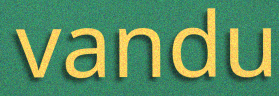
vandu